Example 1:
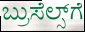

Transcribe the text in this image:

ಬ್ರುಸೆಲ್ಸ್‌ಗೆ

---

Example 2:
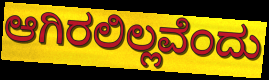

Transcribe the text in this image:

ಆಗಿರಲಿಲ್ಲವೆಂದು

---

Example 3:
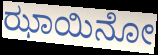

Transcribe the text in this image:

ಝಾಯಿನೋ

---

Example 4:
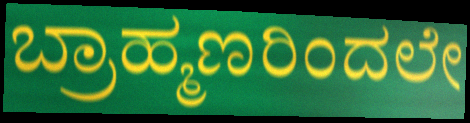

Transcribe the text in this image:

ಬ್ರಾಹ್ಮಣರಿಂದಲೇ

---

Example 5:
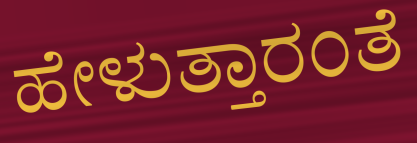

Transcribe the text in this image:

ಹೇಳುತ್ತಾರಂತೆ